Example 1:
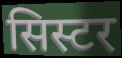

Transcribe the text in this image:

सिस्टर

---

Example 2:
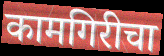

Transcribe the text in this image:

कामगिरीचा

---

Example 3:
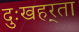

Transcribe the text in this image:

दुःखहर्ता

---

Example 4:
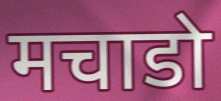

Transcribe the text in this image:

मचाडो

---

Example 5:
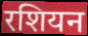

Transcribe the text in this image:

रशियन